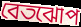
বেতঝোপ